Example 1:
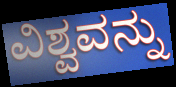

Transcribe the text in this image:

ವಿಶ್ವವನ್ನು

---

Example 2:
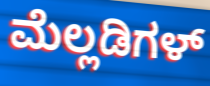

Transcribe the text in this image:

ಮೆಲ್ಲಡಿಗಳ್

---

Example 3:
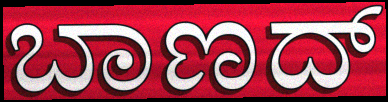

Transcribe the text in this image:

ಬಾಣದ್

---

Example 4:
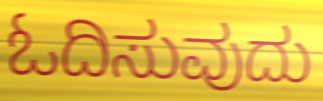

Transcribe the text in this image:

ಓದಿಸುವುದು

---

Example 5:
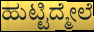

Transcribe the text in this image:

ಹುಟ್ಟಿದ್ಮೇಲೆ